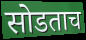
सोडताच